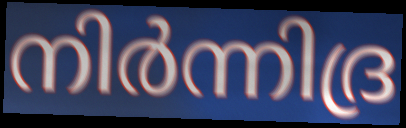
നിർന്നിദ്ര